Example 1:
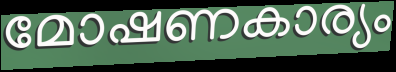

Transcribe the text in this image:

മോഷണകാര്യം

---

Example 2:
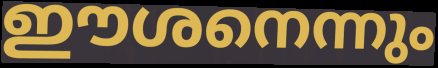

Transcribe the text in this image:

ഈശനെന്നും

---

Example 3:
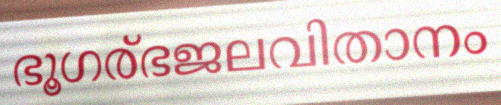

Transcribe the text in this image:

ഭൂഗര്ഭജലവിതാനം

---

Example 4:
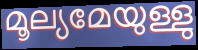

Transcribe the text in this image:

മൂല്യമേയുള്ളു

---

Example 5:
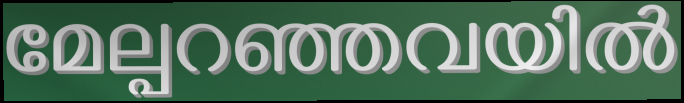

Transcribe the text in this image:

മേല്പറഞ്ഞവയിൽ